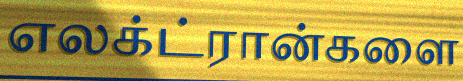
எலக்ட்ரான்களை